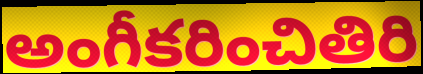
అంగీకరించితిరి